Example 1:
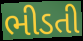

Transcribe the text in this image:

ભીડતી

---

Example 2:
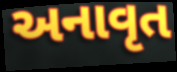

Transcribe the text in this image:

અનાવૃત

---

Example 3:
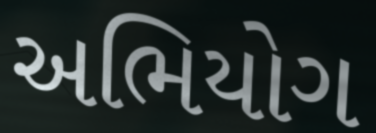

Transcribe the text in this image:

અભિયોગ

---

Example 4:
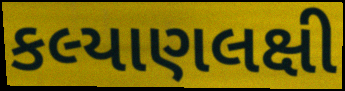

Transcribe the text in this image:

કલ્યાણલક્ષી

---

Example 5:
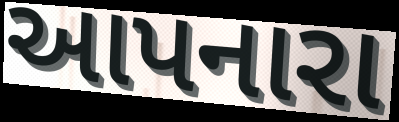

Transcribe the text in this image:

આપનારા